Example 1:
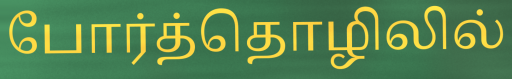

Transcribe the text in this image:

போர்த்தொழிலில்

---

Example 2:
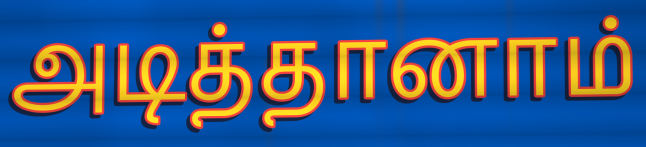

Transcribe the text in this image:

அடித்தானாம்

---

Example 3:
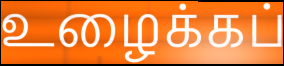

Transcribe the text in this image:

உழைக்கப்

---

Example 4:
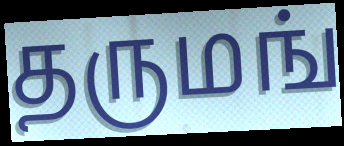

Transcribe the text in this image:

தருமங்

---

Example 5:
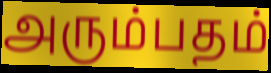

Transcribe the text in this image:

அரும்பதம்